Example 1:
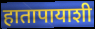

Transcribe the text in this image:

हातापायाशी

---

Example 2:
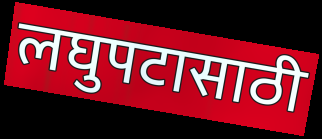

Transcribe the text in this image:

लघुपटासाठी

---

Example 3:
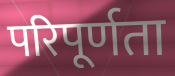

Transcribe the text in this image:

परिपूर्णता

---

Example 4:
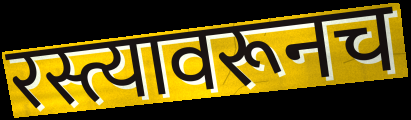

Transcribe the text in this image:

रस्त्यावरूनच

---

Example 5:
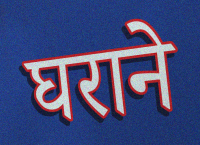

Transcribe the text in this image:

घराने